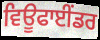
ਵਿਊਫਾਈਂਡਰ